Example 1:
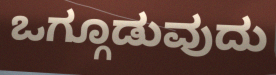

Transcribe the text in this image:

ಒಗ್ಗೂಡುವುದು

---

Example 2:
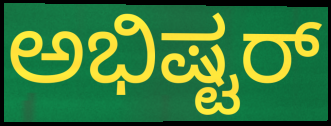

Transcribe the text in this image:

ಅಭಿಷ್ಟರ್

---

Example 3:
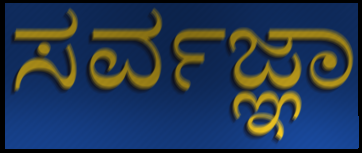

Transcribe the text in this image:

ಸರ್ವಜ್ಞಾ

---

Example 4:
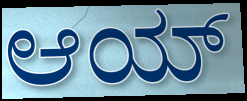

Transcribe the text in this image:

ಆಯ್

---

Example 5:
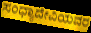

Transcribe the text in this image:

ಸಂಧ್ಯಾದೇವಿಯವರ